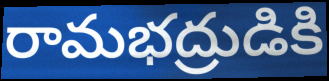
రామభద్రుడికి